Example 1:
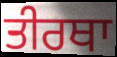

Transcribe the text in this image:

ਤੀਰਥਾ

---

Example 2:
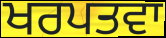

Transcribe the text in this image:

ਖਰਪਤਵਾ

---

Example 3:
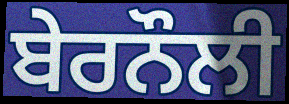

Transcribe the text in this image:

ਬੇਰਨੌਲੀ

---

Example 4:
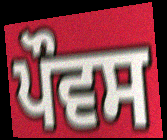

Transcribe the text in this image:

ਪੌਵਸ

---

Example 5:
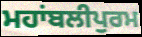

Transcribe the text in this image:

ਮਹਾਂਬਲੀਪੁਰਮ